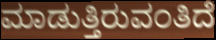
ಮಾಡುತ್ತಿರುವಂತಿದೆ